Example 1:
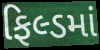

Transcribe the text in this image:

ફિલ્ડમાં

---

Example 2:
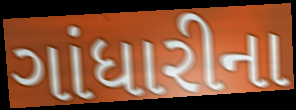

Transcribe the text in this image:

ગાંધારીના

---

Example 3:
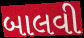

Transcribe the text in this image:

બાલવી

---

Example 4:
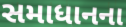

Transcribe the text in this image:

સમાધાનના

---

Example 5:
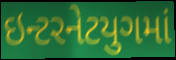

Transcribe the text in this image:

ઇન્ટરનેટયુગમાં